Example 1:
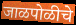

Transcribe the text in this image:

जाळपोळीचे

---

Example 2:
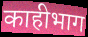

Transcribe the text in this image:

काहीभाग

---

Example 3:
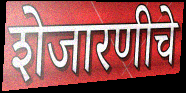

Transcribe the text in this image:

शेजारणीचे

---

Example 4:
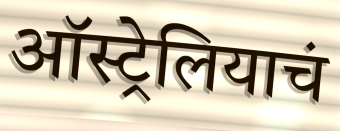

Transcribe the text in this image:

ऑस्ट्रेलियाचं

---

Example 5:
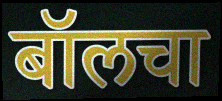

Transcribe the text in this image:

बॉलचा